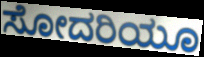
ಸೋದರಿಯೂ